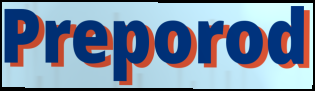
Preporod